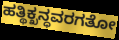
ಹತ್ಥಿಕ್ಖನ್ಧವರಗತೋ